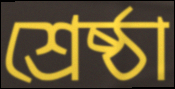
শ্রেষ্ঠা